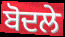
ਬੋਦਲੇ